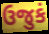
ઉજુકં